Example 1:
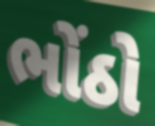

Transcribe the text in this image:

ભોંઠો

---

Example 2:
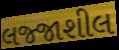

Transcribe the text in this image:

લજ્જાશીલ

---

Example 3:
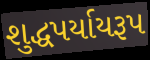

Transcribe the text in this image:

શુદ્ધપર્યાયરૂપ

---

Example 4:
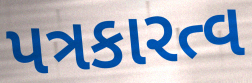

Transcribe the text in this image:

પત્રકારત્વ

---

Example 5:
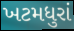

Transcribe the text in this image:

ખટમધુરાં